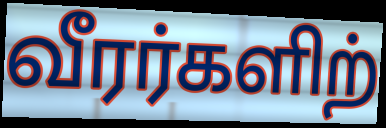
வீரர்களிற்